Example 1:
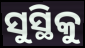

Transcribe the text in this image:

ସୁସ୍ଥିକୁ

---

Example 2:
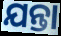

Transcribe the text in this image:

ଯନ୍ତା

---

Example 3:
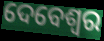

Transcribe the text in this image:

ଦେବେଶ୍ୱର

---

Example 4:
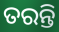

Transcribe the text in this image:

ତରନ୍ତି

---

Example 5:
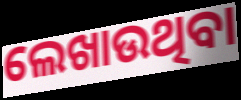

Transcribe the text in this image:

ଲେଖାଉଥିବା